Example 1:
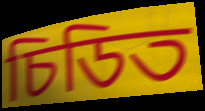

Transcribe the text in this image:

চিডিত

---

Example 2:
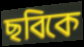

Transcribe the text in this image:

ছবিকে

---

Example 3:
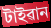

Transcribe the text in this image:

টাইৱান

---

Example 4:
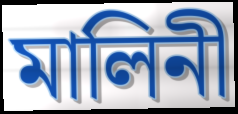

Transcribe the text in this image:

মালিনী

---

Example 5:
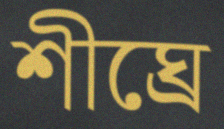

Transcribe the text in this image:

শীঘ্ৰে